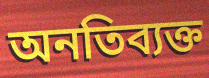
অনতিব্যক্ত